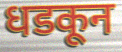
धडकून